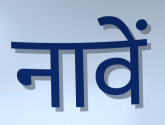
नावें